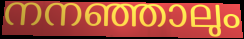
നനഞ്ഞാലും